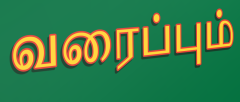
வரைப்பும்